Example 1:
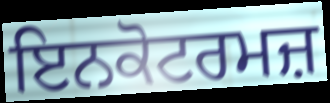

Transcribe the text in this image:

ਇਨਕੋਟਰਮਜ਼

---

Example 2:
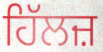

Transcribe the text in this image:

ਹਿੱਲਜ਼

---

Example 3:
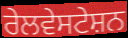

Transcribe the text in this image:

ਰੇਲਵੇਸਟੇਸ਼ਨ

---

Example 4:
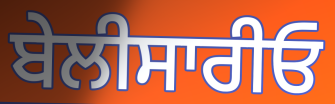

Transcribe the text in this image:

ਬੇਲੀਸਾਰੀਓ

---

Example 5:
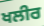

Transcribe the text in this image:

ਖਲੀਰ